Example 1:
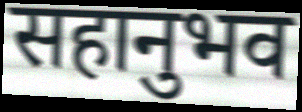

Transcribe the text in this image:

सहानुभव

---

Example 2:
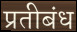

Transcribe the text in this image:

प्रतीबंध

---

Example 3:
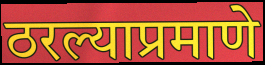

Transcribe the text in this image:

ठरल्याप्रमाणे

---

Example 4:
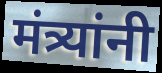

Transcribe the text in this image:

मंत्र्यांनी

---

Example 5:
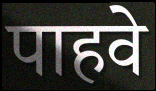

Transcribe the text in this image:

पाहवे